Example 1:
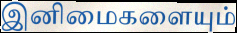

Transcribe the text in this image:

இனிமைகளையும்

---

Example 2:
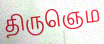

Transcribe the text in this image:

திருஞெம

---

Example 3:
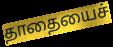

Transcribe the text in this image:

தாதையைச்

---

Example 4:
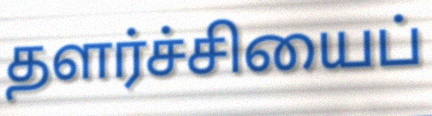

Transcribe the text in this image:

தளர்ச்சியைப்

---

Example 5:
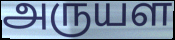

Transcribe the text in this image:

அருயள